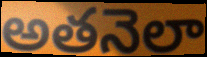
అతనెలా